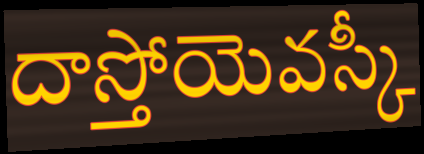
దాస్తోయెవస్కీ